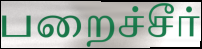
பறைச்சீர்